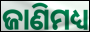
ଜାଣିମଧ୍ୟ